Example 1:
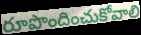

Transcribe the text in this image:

రూపొందించుకోవాలి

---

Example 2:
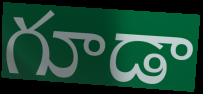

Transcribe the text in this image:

గూడా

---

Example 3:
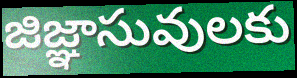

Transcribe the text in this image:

జిజ్ఞాసువులకు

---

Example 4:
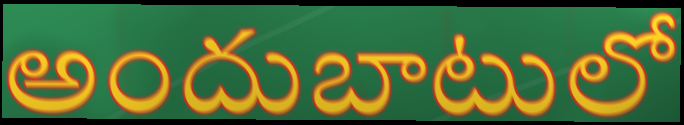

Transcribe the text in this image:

అందుబాటులో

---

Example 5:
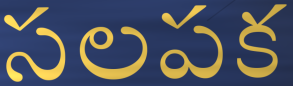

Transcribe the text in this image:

సలపక